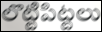
లొట్టిపిట్టలు